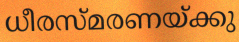
ധീരസ്മരണയ്ക്കു